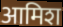
आमिश